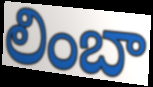
లింబా